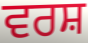
ਵਰਸ਼